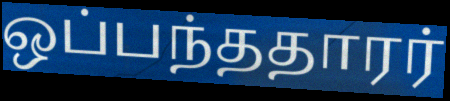
ஒப்பந்ததாரர்